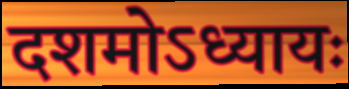
दशमोऽध्यायः